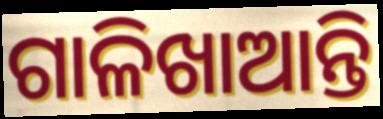
ଗାଳିଖାଆନ୍ତି